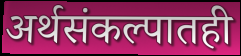
अर्थसंकल्पातही